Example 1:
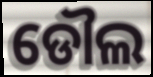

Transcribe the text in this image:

ଡୌଲ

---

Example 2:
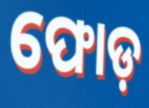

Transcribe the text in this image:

ଫୋଡ଼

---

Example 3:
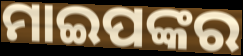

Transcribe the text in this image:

ମାଇପଙ୍କର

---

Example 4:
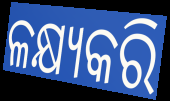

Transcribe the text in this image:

ଳକ୍ଷ୍ୟକରି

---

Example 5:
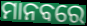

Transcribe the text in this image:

ମାନବରେ